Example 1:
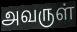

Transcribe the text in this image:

அவருள்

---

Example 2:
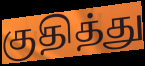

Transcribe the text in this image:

குதித்து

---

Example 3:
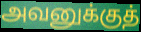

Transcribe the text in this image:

அவனுக்குத்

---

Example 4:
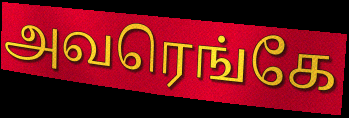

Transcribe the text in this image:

அவரெங்கே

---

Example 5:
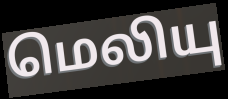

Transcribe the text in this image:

மெலியு